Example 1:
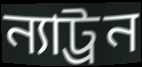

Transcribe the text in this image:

ন্যাট্রন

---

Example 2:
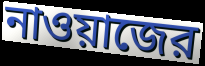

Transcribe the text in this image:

নাওয়াজের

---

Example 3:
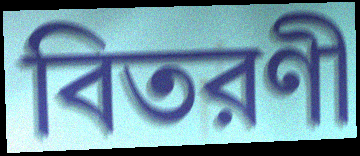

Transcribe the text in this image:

বিতরণী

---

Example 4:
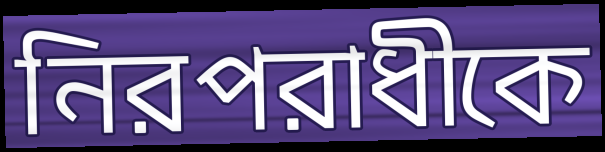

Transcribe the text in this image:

নিরপরাধীকে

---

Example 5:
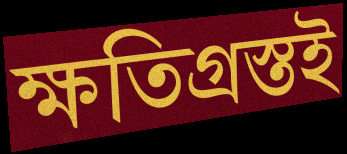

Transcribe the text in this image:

ক্ষতিগ্রস্তই